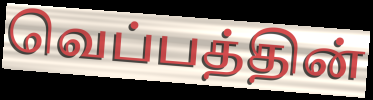
வெப்பத்தின்